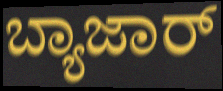
ಬ್ಯಾಜಾರ್